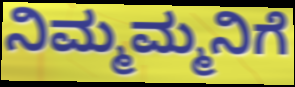
ನಿಮ್ಮಮ್ಮನಿಗೆ